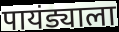
पायंड्याला